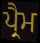
ਪ੍ਰੈਮ